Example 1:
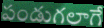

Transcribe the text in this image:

పండుగలాగే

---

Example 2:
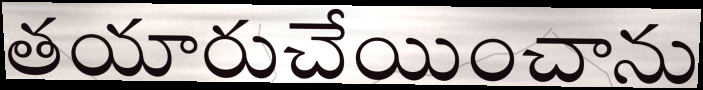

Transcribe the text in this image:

తయారుచేయించాను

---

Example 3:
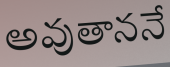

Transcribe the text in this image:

అవుతాననే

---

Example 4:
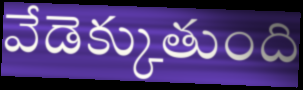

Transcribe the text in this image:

వేడెక్కుతుంది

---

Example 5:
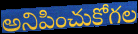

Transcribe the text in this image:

అనిపించుకోగల